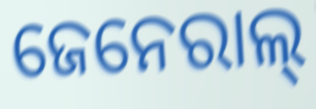
ଜେନେରାଲ୍